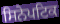
ਸਿਨੇਪਟਿਕ